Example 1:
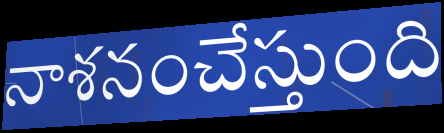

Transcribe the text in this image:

నాశనంచేస్తుంది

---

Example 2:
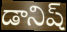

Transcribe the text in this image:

డానిష్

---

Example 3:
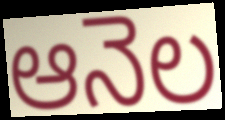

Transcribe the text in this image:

ఆనెల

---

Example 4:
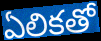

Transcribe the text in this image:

ఏలికతో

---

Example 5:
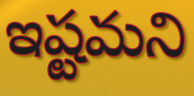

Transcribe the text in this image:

ఇష్టమని